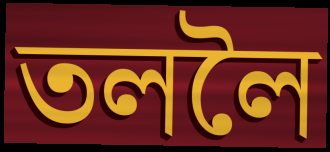
তললৈ